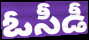
ఓసీడీ